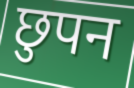
छुपन